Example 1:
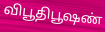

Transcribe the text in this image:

விபூதிபூஷண்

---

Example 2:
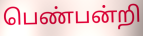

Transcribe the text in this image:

பெண்பன்றி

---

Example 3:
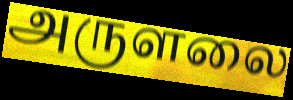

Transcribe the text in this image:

அருளலை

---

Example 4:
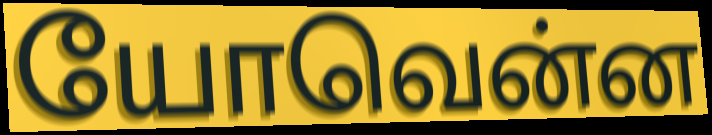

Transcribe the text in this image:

யோவென்ன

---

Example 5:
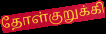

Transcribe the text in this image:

தோள்குறுக்கி